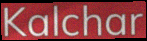
Kalchar